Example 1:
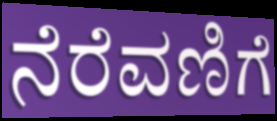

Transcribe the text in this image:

ನೆರೆವಣಿಗೆ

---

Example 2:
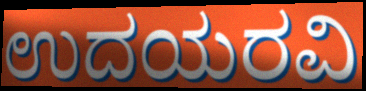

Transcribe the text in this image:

ಉದಯರವಿ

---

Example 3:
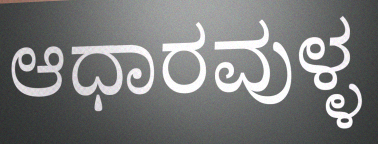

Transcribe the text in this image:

ಆಧಾರವುಳ್ಳ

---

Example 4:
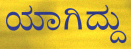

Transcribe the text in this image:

ಯಾಗಿದ್ದು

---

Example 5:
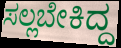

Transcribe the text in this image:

ಸಲ್ಲಬೇಕಿದ್ದ